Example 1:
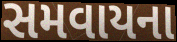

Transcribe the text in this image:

સમવાયના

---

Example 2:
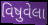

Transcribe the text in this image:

વિષુવેલા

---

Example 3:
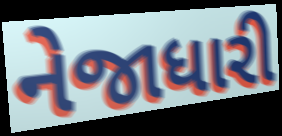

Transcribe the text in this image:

નેજાધારી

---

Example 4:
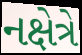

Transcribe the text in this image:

નક્ષેત્રે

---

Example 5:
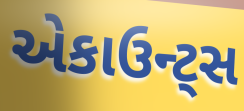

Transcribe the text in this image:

એકાઉન્ટ્સ